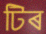
টিৰ